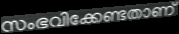
സംഭവിക്കേണ്ടതാണ്